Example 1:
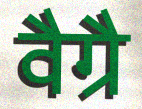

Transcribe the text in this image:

वैग्रै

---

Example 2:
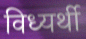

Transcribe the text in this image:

विध्यर्थी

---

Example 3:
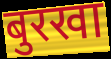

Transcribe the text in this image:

बुरखा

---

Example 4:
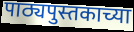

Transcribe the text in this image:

पाठ्यपुस्तकाच्या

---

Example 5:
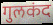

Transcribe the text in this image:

गुलकंद